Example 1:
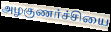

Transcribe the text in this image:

அழகுணர்ச்சியை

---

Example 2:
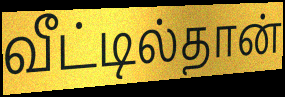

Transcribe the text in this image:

வீட்டில்தான்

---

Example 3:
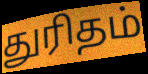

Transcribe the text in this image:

துரிதம்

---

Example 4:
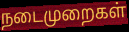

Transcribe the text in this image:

நடைமுறைகள்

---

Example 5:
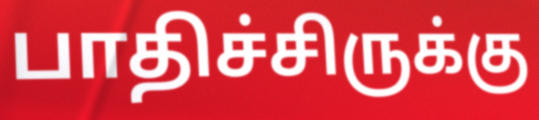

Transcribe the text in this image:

பாதிச்சிருக்கு